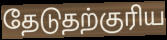
தேடுதற்குரிய